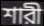
শারী